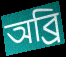
অব্ৰি